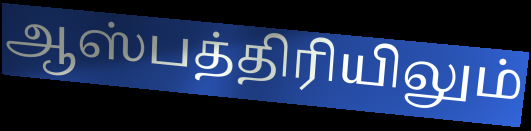
ஆஸ்பத்திரியிலும்